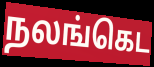
நலங்கெட